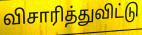
விசாரித்துவிட்டு